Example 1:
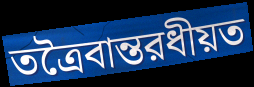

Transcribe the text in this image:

তত্রৈবান্তরধীয়ত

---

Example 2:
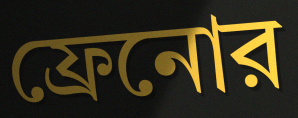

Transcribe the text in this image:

ফ্রেনোর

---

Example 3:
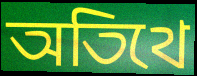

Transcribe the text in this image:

অতিথে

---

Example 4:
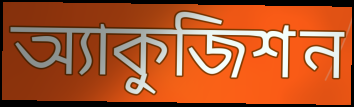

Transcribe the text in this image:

অ্যাকুজিশন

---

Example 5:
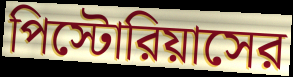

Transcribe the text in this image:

পিস্টোরিয়াসের